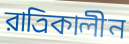
রাত্রিকালীন